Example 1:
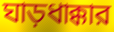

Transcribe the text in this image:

ঘাড়ধাক্কার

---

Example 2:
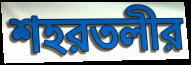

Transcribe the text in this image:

শহরতলীর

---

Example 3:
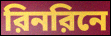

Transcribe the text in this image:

রিনরিনে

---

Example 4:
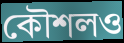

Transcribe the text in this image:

কৌশলও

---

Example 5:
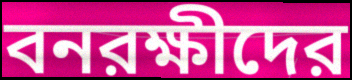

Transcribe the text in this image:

বনরক্ষীদের